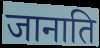
जानाति